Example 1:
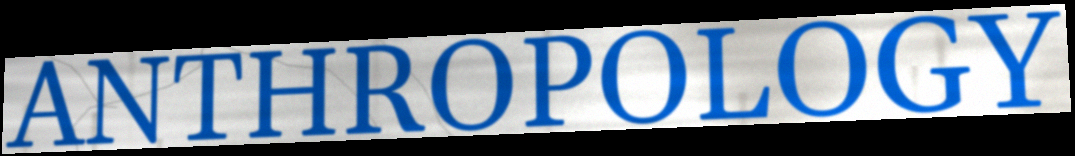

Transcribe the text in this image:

ANTHROPOLOGY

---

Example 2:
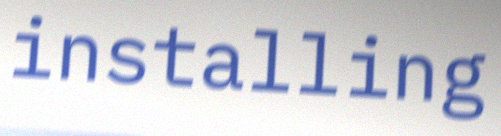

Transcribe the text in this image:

installing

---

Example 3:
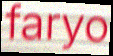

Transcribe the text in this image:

faryo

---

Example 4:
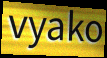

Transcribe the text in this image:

vyako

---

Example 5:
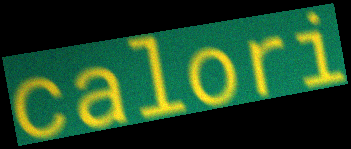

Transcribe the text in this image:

calori